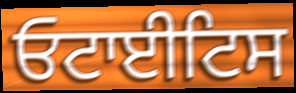
ਓਟਾਈਟਿਸ